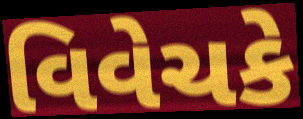
વિવેચકે